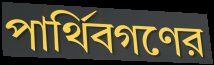
পার্থিবগণের